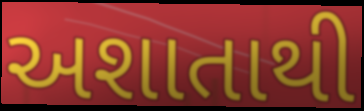
અશાતાથી